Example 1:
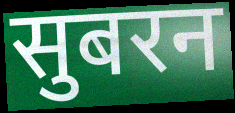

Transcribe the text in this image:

सुबरन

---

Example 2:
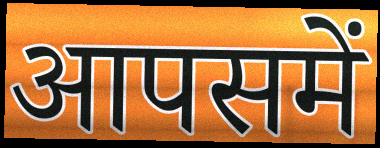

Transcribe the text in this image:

आपसमें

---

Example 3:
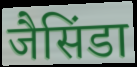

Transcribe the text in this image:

जैसिंडा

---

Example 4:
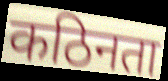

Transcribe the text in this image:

कठिनता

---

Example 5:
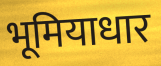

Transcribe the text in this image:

भूमियाधार